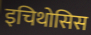
इचिथोसिस